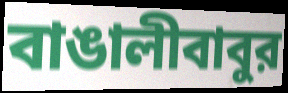
বাঙালীবাবুর